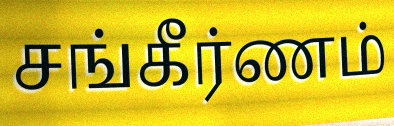
சங்கீர்ணம்